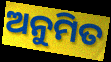
ଅନୁମିତ